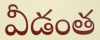
వీడంత